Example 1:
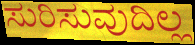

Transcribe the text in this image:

ಸುರಿಸುವುದಿಲ್ಲ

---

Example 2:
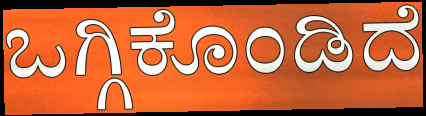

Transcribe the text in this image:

ಒಗ್ಗಿಕೊಂಡಿದೆ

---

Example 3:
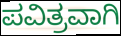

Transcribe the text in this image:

ಪವಿತ್ರವಾಗಿ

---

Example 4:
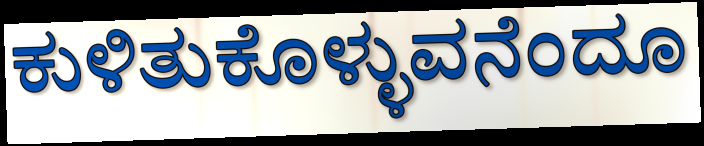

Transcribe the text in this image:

ಕುಳಿತುಕೊಳ್ಳುವನೆಂದೂ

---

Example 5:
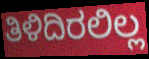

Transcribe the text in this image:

ತಿಳಿದಿರಲಿಲ್ಲ